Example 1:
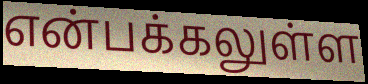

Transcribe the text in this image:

என்பக்கலுள்ள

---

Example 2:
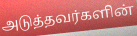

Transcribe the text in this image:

அடுத்தவர்களின்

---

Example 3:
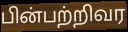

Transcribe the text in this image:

பின்பற்றிவர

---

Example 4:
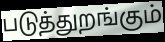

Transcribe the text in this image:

படுத்துறங்கும்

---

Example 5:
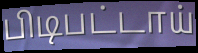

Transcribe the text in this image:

பிடிபட்டாய்